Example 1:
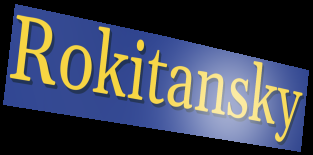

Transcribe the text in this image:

Rokitansky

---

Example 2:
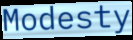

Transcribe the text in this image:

Modesty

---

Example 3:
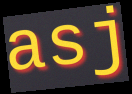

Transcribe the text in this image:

asj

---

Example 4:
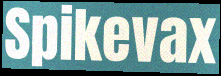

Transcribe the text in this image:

Spikevax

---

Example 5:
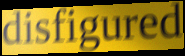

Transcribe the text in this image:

disfigured